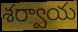
శర్వాయ